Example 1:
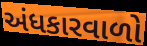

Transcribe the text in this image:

અંધકારવાળો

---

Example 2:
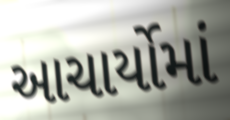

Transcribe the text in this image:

આચાર્યોમાં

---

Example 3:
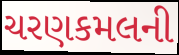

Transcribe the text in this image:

ચરણકમલની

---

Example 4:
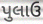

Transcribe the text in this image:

પુલાઉ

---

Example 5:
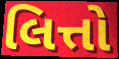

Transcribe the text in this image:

લિત્તો